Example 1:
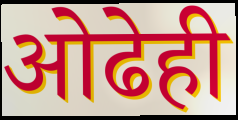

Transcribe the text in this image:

ओढेही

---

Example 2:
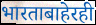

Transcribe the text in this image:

भारताबाहेरही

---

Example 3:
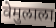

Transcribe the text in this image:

वेमुलाला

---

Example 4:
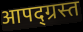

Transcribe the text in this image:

आपद्ग्रस्त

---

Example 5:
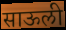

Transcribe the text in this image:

साऊली